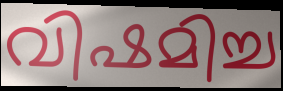
വിഷമിച്ച